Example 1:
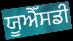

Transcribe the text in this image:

ਯੂਐੱਸਡੀ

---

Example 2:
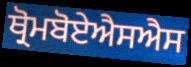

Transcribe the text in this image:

ਥ੍ਰੋਮਬੋਏਐਸਐਸ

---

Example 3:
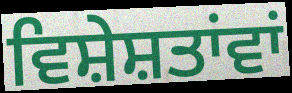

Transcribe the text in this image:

ਵਿਸ਼ੇਸ਼ਤਾਂਵਾਂ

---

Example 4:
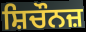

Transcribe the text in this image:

ਸ਼ਿਚੌਨਜ਼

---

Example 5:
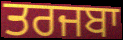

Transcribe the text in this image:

ਤਰਜਬਾ